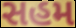
સહમ